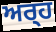
ਅਰ੍‍ਹ